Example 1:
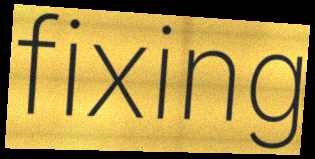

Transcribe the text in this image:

fixing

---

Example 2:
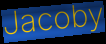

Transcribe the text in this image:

Jacoby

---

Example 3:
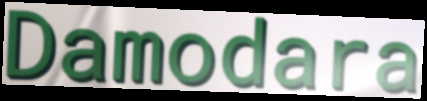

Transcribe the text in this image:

Damodara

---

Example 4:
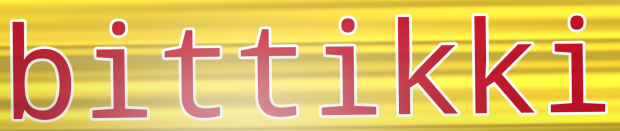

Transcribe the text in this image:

bittikki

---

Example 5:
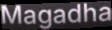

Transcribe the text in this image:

Magadha